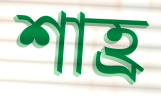
শাহ্র